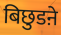
बिछुडऩे